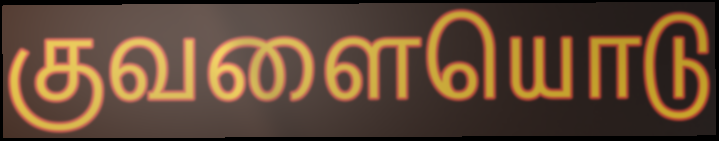
குவளையொடு